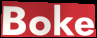
Boke